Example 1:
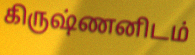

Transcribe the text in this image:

கிருஷ்ணனிடம்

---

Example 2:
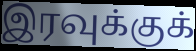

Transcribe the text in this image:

இரவுக்குக்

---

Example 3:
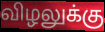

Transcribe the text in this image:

விழலுக்கு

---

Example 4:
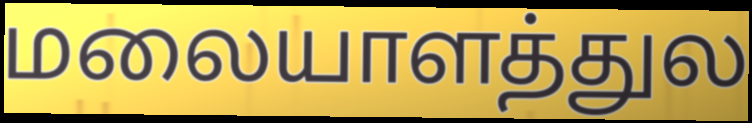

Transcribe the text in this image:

மலையாளத்துல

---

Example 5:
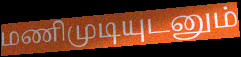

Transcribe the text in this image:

மணிமுடியுடனும்